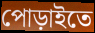
পোড়াইতে